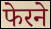
फेरने